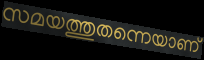
സമയത്തുതന്നെയാണ്